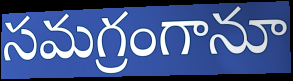
సమగ్రంగానూ